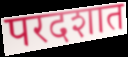
परदशात